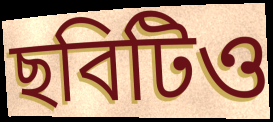
ছবিটিও